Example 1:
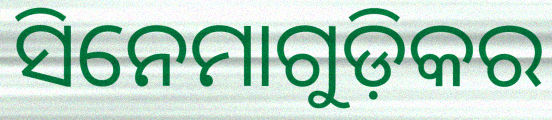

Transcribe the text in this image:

ସିନେମାଗୁଡ଼ିକର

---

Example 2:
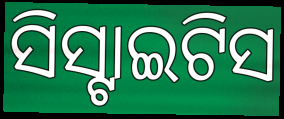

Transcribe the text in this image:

ସିସ୍ଟାଇଟିସ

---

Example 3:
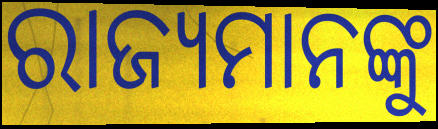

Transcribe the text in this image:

ରାଜ୍ଯମାନଙ୍କୁ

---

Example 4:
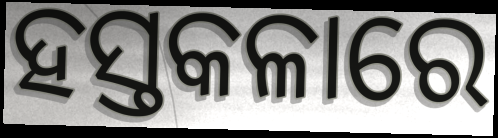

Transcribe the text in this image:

ହସ୍ତକଳାରେ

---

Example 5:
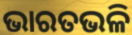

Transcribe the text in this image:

ଭାରତଭଳି